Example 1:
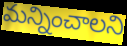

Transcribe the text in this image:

మన్నించాలని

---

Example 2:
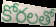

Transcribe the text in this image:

కోరలతో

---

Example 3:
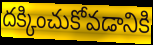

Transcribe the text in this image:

దక్కించుకోవడానికి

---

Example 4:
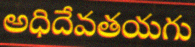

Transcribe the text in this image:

అధిదేవతయగు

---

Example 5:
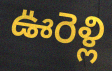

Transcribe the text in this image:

ఊరెళ్లి